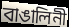
বাঙালিনী